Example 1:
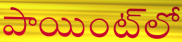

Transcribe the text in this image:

పాయింట్‌లో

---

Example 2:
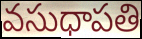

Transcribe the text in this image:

వసుధాపతి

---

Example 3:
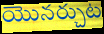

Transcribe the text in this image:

యొనర్చుట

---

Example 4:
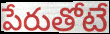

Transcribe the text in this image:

పేరుతోటే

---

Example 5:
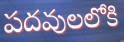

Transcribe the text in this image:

పదవులలోకి